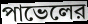
পাভেলের